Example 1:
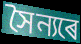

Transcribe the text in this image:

সৈন্যৰে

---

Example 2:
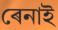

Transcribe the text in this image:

ৰেনাই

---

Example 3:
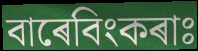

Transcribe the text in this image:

বাৰেবিংকৰাঃ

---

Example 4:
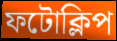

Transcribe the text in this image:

ফটোক্লিপ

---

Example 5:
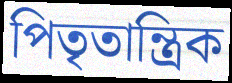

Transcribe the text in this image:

পিতৃতান্ত্ৰিক